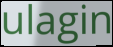
ulagin